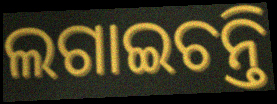
ଲଗାଇଚନ୍ତି